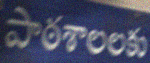
పాఠశాలలకు